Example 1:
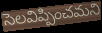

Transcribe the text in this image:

సెలవిప్పించమని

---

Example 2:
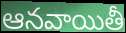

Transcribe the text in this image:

ఆనవాయితీ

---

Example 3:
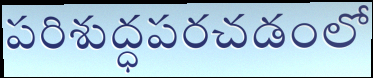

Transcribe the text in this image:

పరిశుద్ధపరచడంలో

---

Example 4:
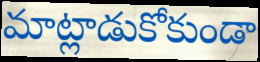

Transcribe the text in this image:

మాట్లాడుకోకుండా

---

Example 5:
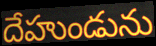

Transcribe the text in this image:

దేహుండును